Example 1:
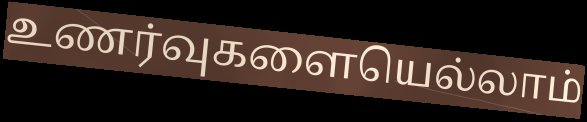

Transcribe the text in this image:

உணர்வுகளையெல்லாம்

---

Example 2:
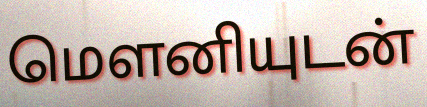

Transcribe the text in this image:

மௌனியுடன்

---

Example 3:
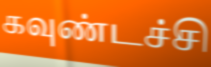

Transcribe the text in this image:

கவுண்டச்சி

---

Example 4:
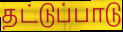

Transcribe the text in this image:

தட்டுப்பாடு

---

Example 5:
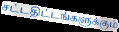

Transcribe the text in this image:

சட்டதிட்டங்களுக்கும்